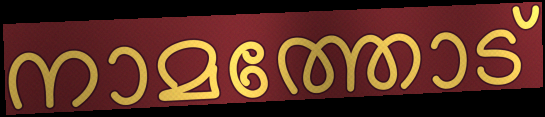
നാമത്തോട്